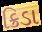
ક્રિડા